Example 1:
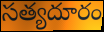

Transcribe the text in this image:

సత్యదూరం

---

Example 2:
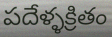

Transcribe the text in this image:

పదేళ్ళక్రితం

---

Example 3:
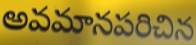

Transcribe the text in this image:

అవమానపరిచిన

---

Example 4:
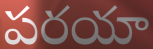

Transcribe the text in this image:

పరయా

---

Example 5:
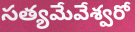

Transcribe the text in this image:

సత్యమేవేశ్వరో